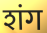
शंग